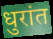
धुरांत